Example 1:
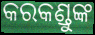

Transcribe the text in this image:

କରକଣ୍ଡୁଙ୍କ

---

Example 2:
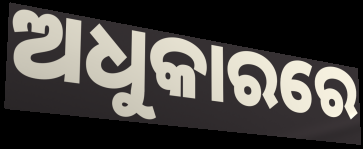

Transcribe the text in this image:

ଅଧୁକାରରେ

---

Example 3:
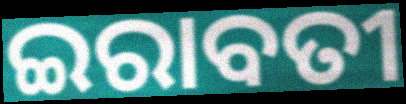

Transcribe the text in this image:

ଇରାବତୀ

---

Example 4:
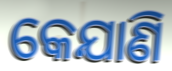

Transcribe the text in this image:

କେଯାଣି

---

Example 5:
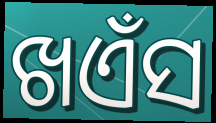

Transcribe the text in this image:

ଖଏଁସ